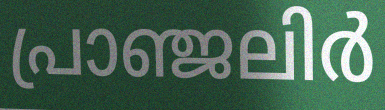
പ്രാഞ്ജലിർ